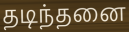
தடிந்தனை